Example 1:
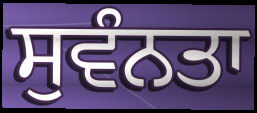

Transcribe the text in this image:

ਸੁਵੰਨਤਾ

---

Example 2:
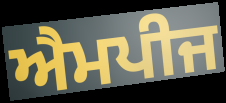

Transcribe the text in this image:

ਐਮਪੀਜ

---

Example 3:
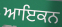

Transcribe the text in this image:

ਆਇਕਨ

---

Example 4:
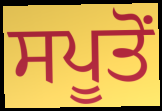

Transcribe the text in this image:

ਸਪੂਤੋਂ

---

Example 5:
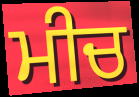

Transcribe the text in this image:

ਮੀਚ